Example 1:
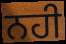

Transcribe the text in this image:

ਨਹੀ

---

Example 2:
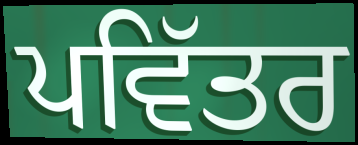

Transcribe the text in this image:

ਪਵਿੱਤਰ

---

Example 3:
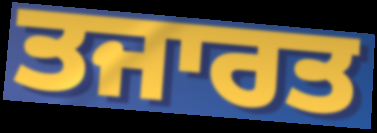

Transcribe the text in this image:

ਤਜਾਰਤ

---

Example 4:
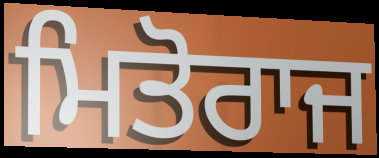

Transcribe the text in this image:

ਮਿਤੋਰਾਜ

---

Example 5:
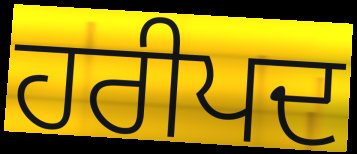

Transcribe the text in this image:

ਹਰੀਪਦ